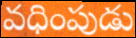
వధింపుడు